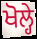
ਖੋਲ੍ਹੇ